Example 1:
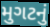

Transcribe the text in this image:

મુગટનું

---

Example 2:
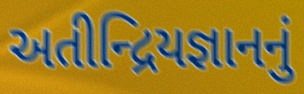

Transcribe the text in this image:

અતીન્દ્રિયજ્ઞાનનું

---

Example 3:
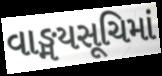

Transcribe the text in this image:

વાઙ્મયસૂચિમાં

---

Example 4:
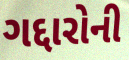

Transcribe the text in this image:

ગદ્દારોની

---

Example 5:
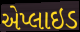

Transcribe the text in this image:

એપ્લાઇડ